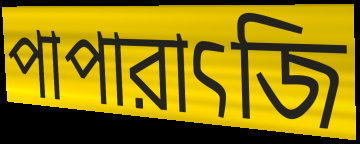
পাপারাৎজি